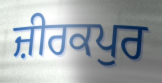
ਜ਼ੀਰਕਪੁਰ